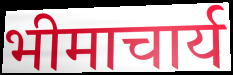
भीमाचार्य